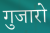
गुजारो